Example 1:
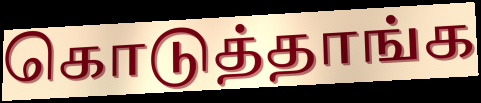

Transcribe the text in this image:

கொடுத்தாங்க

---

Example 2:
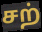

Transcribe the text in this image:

சற்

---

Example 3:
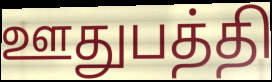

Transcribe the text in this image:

ஊதுபத்தி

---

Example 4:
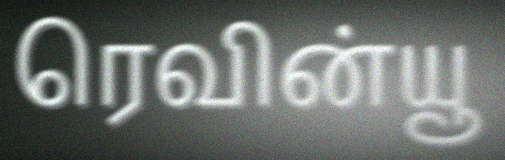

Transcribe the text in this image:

ரெவின்யூ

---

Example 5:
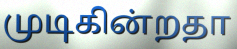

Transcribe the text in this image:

முடிகின்றதா